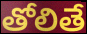
తోలితే